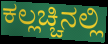
ಕಲ್ಲಚ್ಚಿನಲ್ಲಿ